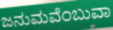
ಜನುಮವೆಂಬುವಾ